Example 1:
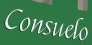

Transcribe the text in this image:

Consuelo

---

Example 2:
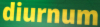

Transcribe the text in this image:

diurnum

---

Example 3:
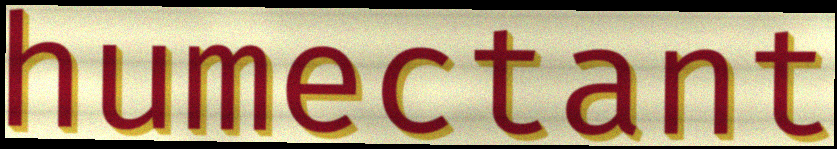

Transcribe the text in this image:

humectant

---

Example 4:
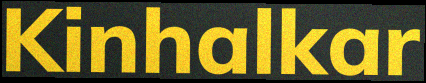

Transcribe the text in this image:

Kinhalkar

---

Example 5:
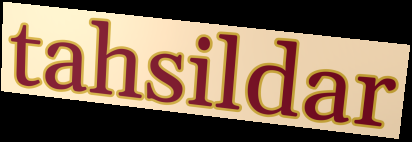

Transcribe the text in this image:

tahsildar